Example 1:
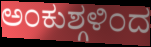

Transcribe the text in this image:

ಅಂಕುಶ್ಗಳಿಂದ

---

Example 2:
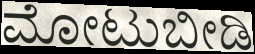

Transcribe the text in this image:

ಮೋಟುಬೀಡಿ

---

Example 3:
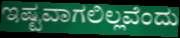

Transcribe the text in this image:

ಇಷ್ಟವಾಗಲಿಲ್ಲವೆಂದು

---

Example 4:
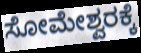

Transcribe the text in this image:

ಸೋಮೇಶ್ವರಕ್ಕೆ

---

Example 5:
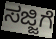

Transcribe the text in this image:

ಸಜ್ಜಿಗೆ